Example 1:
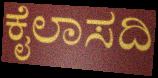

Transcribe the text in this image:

ಕೈಲಾಸದಿ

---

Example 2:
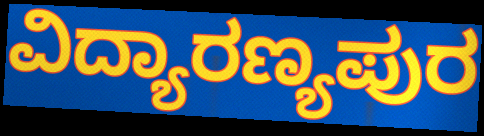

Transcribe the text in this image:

ವಿದ್ಯಾರಣ್ಯಪುರ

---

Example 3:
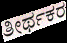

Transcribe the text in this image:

ತೀರ್ಥಕರ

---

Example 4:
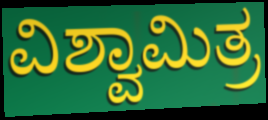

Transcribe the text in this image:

ವಿಶ್ವಾಮಿತ್ರ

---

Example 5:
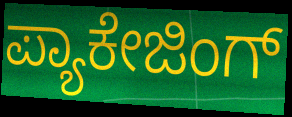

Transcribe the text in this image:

ಪ್ಯಾಕೇಜಿಂಗ್